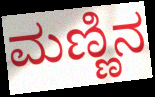
ಮಣ್ಣಿನ